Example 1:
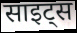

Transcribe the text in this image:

साइट्स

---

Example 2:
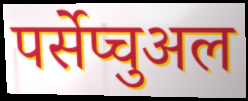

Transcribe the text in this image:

पर्सेप्चुअल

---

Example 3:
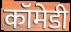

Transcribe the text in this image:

कॉमेडी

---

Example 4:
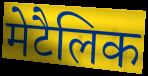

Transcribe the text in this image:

मेटैलिक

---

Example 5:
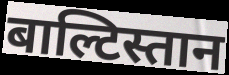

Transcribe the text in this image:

बाल्टिस्तान